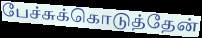
பேச்சுக்கொடுத்தேன்